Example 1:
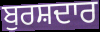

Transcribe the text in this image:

ਬੁਰਸ਼ਦਾਰ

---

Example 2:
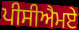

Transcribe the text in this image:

ਪੀਸੀਐਮਏ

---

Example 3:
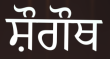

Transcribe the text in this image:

ਸ਼ੌਗੌਥ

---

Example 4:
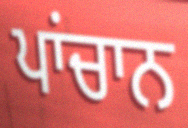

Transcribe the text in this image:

ਪਾਂਚਾਨ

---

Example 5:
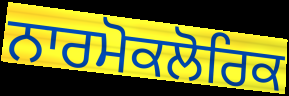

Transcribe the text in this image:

ਨਾਰਮੋਕਲੋਰਿਕ